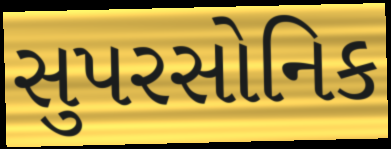
સુપરસોનિક